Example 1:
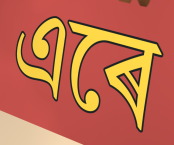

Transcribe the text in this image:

এৰে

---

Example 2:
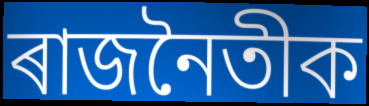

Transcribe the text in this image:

ৰাজনৈতীক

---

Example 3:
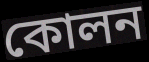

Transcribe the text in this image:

কোলন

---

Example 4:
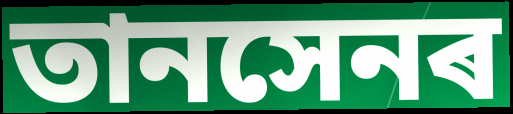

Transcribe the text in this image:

তানসেনৰ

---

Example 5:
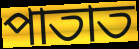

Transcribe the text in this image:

পাতাত